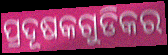
ପ୍ରଦୂଷକଗୁଡିକର